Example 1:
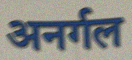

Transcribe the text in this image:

अनर्गल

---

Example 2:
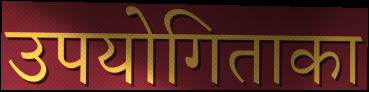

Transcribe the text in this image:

उपयोगिताका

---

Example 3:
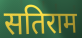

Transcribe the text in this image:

सतिराम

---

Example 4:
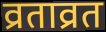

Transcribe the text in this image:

व्रताव्रत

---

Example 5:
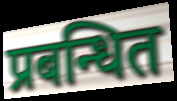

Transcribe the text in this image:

प्रबन्धित